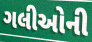
ગલીઓની